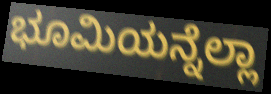
ಭೂಮಿಯನ್ನೆಲ್ಲಾ